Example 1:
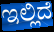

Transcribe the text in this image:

ಇಲ್ಲಿದೆ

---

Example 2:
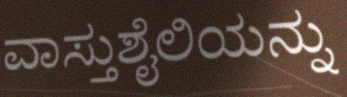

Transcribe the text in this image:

ವಾಸ್ತುಶೈಲಿಯನ್ನು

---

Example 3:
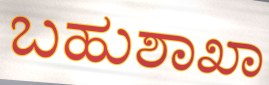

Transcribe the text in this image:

ಬಹುಶಾಖಾ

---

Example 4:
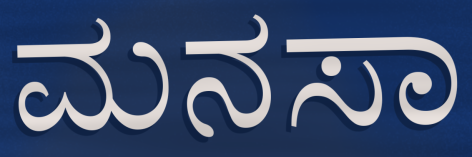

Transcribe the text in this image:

ಮನಸಾ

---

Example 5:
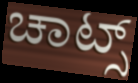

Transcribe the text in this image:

ಚಾಟ್ಸ್